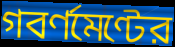
গবর্ণমেণ্টের